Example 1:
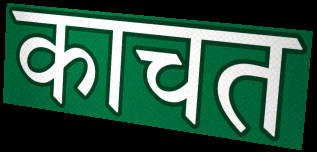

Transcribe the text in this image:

काचत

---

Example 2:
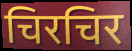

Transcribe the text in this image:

चिरचिर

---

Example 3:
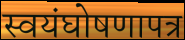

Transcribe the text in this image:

स्वयंघोषणापत्र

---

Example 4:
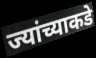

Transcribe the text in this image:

ज्यांच्याकडे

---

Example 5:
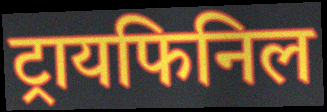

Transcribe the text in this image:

ट्रायफिनिल